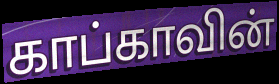
காப்காவின்